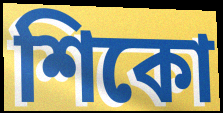
শিকো